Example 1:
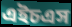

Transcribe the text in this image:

এইচএস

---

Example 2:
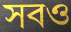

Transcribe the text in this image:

সবও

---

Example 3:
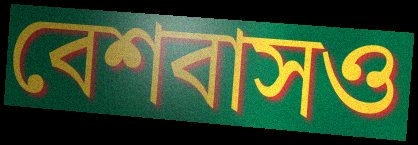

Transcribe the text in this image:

বেশবাসও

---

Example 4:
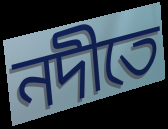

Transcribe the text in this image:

নদীতে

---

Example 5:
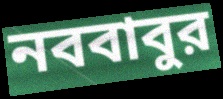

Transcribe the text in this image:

নববাবুর